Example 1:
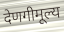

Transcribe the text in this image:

देणगीमूल्य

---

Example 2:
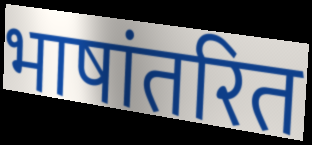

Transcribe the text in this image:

भाषांतरित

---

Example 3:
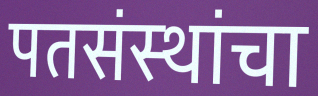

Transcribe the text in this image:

पतसंस्थांचा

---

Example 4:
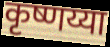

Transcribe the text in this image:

कृष्णय्या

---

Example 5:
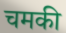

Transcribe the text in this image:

चमकी